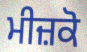
ਮੀਜ਼ਕੋ